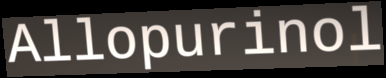
Allopurinol